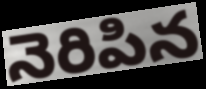
నెరిపిన